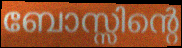
ബോസ്സിന്റെ